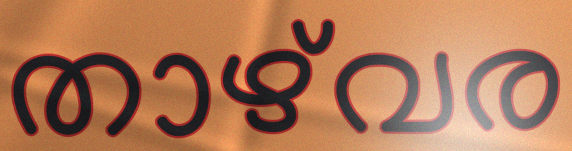
താഴ്‌വര